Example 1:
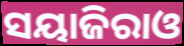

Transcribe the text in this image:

ସୟାଜିରାଓ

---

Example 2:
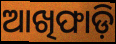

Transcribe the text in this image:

ଆଖିଫାଡ଼ି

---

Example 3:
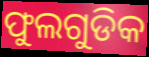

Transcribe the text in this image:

ଫୁଲଗୁଡିକ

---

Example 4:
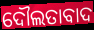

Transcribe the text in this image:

ଦୌଲତାବାଦ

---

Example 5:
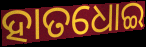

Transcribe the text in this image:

ହାତଧୋଇ